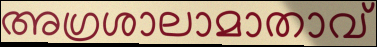
അഗ്രശാലാമാതാവ്